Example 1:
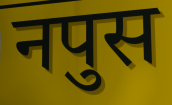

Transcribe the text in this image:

नपुस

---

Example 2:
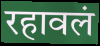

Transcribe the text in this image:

रहावलं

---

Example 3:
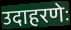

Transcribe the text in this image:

उदाहरणेः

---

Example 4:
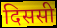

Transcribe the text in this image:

दिससी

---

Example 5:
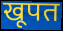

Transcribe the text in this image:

खूपत